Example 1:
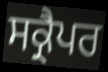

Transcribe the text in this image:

ਸਕ੍ਰੈਪਰ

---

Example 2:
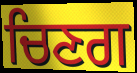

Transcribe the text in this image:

ਚਿਣਗ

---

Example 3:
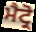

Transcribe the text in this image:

ਮੈਟ੍ਰੋ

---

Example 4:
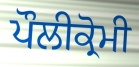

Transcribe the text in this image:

ਪੌਲੀਕ੍ਰੋਮੀ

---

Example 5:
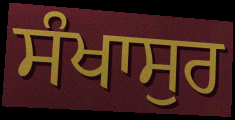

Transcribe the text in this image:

ਸੰਖਾਸੁਰ